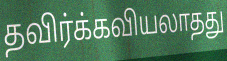
தவிர்க்கவியலாதது